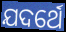
ଯଦର୍ଥେ